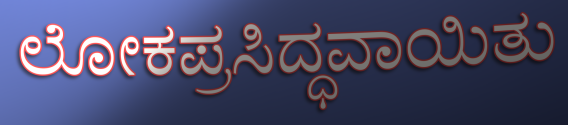
ಲೋಕಪ್ರಸಿದ್ಧವಾಯಿತು